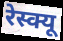
रेस्क्यू